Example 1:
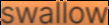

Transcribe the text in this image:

swallow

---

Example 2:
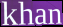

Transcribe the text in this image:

khan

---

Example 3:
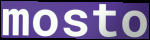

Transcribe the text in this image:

mosto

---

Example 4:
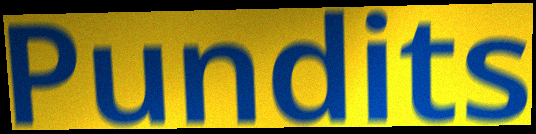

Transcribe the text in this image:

Pundits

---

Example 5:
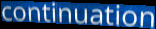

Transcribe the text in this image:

continuation